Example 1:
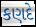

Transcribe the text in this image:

કણદે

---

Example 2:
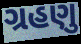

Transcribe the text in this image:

ગ્રહણુ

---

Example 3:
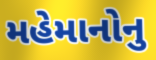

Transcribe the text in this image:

મહેમાનોનુ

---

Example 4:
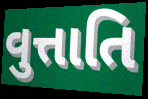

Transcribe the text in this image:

વુત્તાતિ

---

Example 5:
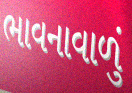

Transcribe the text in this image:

ભાવનાવાળું